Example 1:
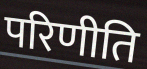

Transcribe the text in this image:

परिणीति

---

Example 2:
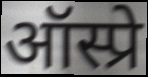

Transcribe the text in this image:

ऑस्प्रे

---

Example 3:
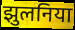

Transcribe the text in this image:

झुलनिया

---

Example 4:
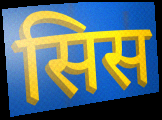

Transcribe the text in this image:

सिस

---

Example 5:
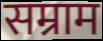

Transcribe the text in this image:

सम्राम